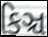
કિઞ્ચ